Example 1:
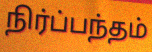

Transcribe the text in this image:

நிர்ப்பந்தம்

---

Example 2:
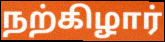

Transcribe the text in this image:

நற்கிழார்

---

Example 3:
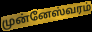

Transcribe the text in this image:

முன்னேஸ்வரம்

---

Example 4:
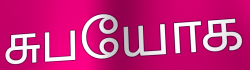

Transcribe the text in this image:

சுபயோக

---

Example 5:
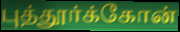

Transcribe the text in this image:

புத்தூர்க்கோன்